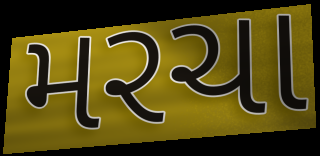
મરચા